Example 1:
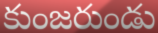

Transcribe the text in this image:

కుంజరుండు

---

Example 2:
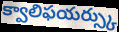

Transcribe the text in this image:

క్వాలిఫయర్స్కు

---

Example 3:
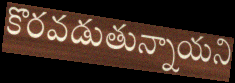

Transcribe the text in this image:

కొరవడుతున్నాయని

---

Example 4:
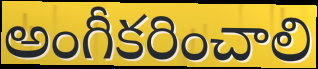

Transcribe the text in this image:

అంగీకరించాలి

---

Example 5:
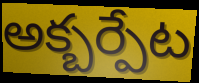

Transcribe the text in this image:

అక్బర్పేట